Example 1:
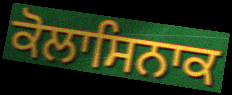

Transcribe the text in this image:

ਕੋਲਾਸਿਨਾਕ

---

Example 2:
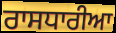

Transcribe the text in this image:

ਰਾਸਧਾਰੀਆ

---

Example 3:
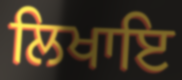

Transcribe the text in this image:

ਲਿਖਾਇ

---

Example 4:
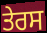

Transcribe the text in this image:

ਤੇਰਸ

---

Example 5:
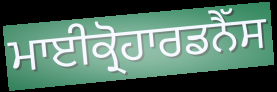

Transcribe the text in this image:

ਮਾਈਕ੍ਰੋਹਾਰਡਨੈੱਸ